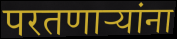
परतणाऱ्यांना